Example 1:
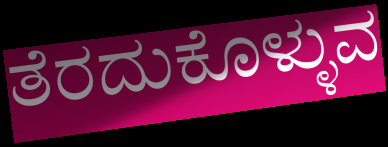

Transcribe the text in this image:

ತೆರದುಕೊಳ್ಳುವ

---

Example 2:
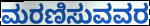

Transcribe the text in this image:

ಮರಣಿಸುವವರ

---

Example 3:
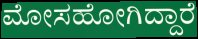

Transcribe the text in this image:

ಮೋಸಹೋಗಿದ್ದಾರೆ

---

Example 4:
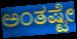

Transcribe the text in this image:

ಅಂತಷ್ಟೇ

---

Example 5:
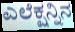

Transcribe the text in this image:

ಎಲೆಕ್ಷನ್ನಿನ